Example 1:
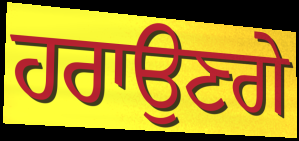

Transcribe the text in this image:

ਹਰਾਉਣਗੇ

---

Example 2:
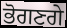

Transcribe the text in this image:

ਭੋਗਣਗੇ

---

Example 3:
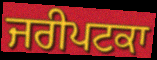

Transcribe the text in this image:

ਜਰੀਪਟਕਾ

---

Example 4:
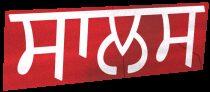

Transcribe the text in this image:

ਸਾਲਸ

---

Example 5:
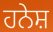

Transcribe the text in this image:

ਹਨੇਸ਼